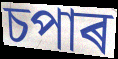
চপাৰ